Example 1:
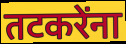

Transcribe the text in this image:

तटकरेंना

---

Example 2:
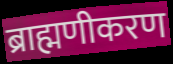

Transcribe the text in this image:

ब्राह्मणीकरण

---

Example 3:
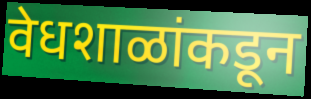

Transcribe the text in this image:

वेधशाळांकडून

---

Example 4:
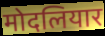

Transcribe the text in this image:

मोदलियार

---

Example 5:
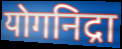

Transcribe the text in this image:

योगनिद्रा